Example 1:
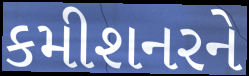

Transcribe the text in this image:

કમીશનરને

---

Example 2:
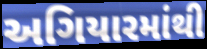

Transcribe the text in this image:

અગિયારમાંથી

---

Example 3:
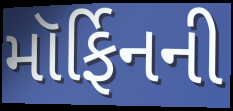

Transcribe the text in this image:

મૉર્ફિનની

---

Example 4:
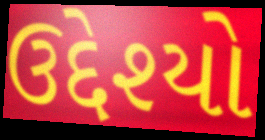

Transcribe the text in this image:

ઉદ્દેશ્યો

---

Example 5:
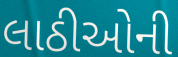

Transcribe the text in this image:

લાઠીઓની